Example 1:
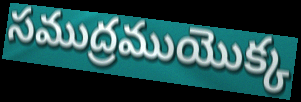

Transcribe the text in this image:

సముద్రముయొక్క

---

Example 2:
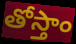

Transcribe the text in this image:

తోస్తాం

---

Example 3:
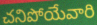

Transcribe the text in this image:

చనిపోయేవారి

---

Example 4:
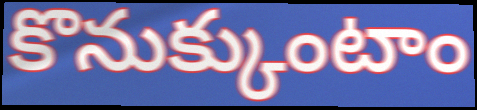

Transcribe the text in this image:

కొనుక్కుంటాం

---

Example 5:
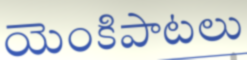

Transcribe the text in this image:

యెంకిపాటలు